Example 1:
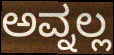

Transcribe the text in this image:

ಅವ್ನಲ್ಲ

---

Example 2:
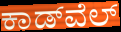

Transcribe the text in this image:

ಕಾಡ್‌ವೆಲ್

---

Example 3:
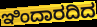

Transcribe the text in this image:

ಇಿಂದಾರದಿದ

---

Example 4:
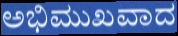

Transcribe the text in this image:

ಅಭಿಮುಖವಾದ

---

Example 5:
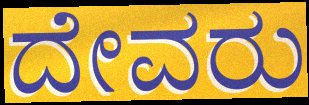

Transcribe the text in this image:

ದೇವರು